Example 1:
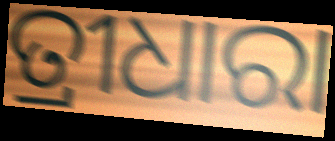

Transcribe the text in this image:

ତ୍ରୀଧାରା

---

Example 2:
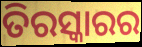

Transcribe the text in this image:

ତିରସ୍କାରର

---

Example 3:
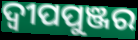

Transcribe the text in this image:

ଦ୍ଵୀପପୁଞ୍ଜର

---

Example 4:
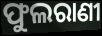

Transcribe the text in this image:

ଫୁଲରାଣୀ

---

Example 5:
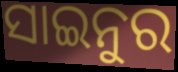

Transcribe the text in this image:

ସାଇନୁର